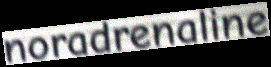
noradrenaline